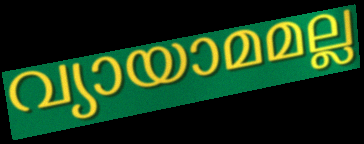
വ്യായാമമല്ല